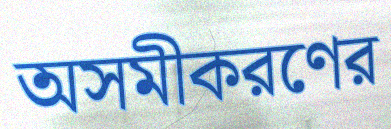
অসমীকরণের